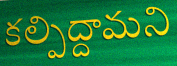
కల్పిద్దామని